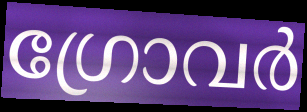
ഗ്രോവർ